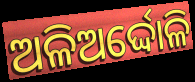
ଅଳିଅର୍ଦ୍ଦୋଳି